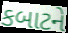
કબાટને